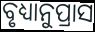
ବୃଧ୍ୟାନୁପ୍ରାସ